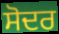
ਸੋਦਰ